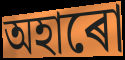
অহাৰো